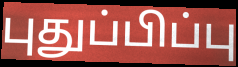
புதுப்பிப்பு